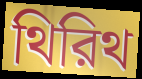
থিরিথ